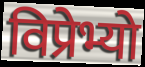
विप्रेभ्यो